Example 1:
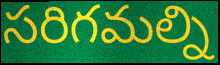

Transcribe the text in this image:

సరిగమల్ని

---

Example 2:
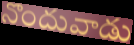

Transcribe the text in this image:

నొందువాడు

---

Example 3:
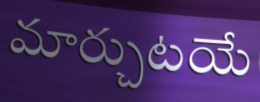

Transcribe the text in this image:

మార్చుటయే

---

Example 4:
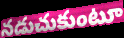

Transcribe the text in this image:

నడుచుకుంటూ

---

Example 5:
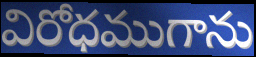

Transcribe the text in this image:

విరోధముగాను